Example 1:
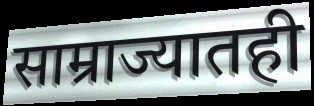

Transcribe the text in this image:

साम्राज्यातही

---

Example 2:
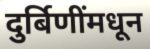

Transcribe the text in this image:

दुर्बिणींमधून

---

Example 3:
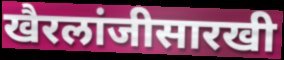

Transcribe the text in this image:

खैरलांजीसारखी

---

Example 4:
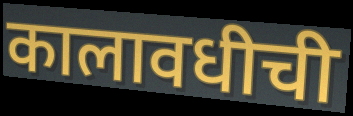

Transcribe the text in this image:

कालावधीची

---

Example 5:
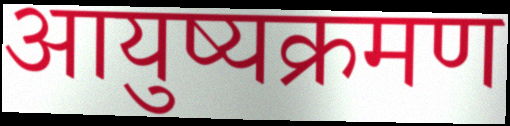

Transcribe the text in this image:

आयुष्यक्रमण